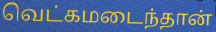
வெட்கமடைந்தான்